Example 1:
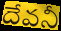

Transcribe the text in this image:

దేవనీ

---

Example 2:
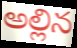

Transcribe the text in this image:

అల్లిన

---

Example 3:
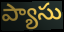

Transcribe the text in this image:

ప్యాసు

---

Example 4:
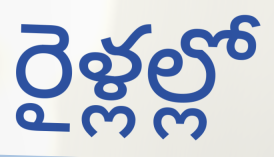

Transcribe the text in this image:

రైళ్లల్లో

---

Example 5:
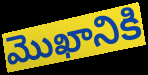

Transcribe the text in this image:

మొఖానికి